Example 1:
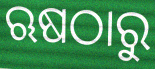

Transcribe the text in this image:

ଋଷଠାରୁ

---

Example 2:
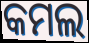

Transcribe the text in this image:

କମଲ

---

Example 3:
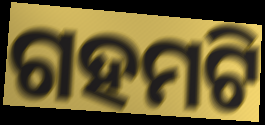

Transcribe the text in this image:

ଗହମଟି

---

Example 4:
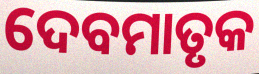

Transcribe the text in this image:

ଦେବମାତୃକ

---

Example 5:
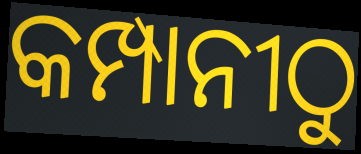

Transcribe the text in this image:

କମ୍ପାନୀଠୁ